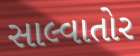
સાલ્વાતોર